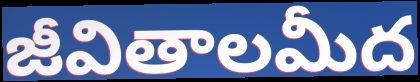
జీవితాలమీద